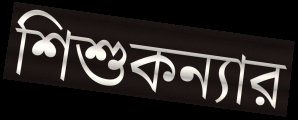
শিশুকন্যার